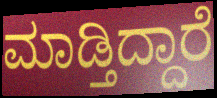
ಮಾಡ್ತಿದ್ದಾರೆ